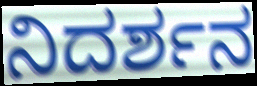
ನಿದರ್ಶನ